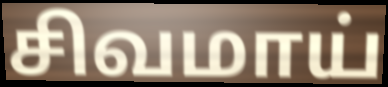
சிவமாய்